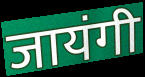
जायंगी